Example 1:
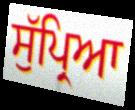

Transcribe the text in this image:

ਸੁੱਪ੍ਰਿਆ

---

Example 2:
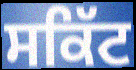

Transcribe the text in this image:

ਸਕਿੱਟ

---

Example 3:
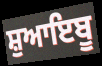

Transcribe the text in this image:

ਸ਼ੁਆਇਬੂ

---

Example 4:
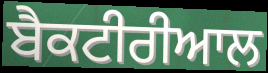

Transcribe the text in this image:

ਬੈਕਟੀਰੀਆਲ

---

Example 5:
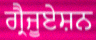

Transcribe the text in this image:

ਗ੍ਰੈਜੂਏਸ਼ਨ